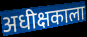
अधीक्षकाला